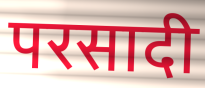
परसादी